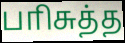
பரிசுத்த